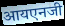
आयएनजी